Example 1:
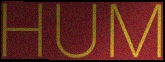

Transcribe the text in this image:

HUM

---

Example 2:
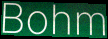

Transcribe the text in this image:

Bohm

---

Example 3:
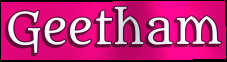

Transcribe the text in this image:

Geetham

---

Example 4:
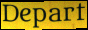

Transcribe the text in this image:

Depart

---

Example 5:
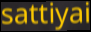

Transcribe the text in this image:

sattiyai